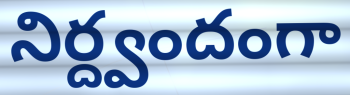
నిర్ద్వందంగా